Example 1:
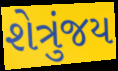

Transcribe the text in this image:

શેત્રુંજય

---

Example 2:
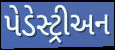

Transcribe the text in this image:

પેડેસ્ટ્રીઅન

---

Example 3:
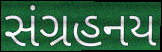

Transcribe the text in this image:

સંગ્રહનય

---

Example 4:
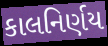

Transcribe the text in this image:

કાલનિર્ણય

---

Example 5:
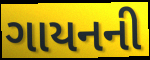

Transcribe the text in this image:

ગાયનની